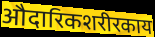
औदारिकशरीरकाय